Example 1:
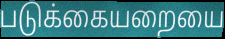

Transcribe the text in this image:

படுக்கையறையை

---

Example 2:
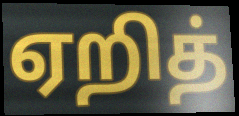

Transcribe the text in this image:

ஏறித்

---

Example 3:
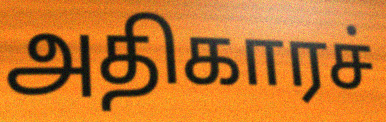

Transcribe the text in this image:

அதிகாரச்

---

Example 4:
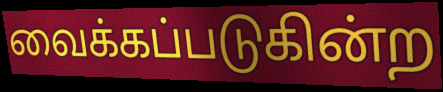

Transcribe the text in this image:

வைக்கப்படுகின்ற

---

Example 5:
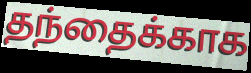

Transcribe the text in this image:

தந்தைக்காக